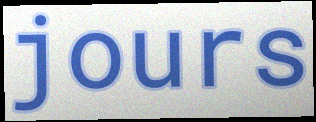
jours